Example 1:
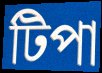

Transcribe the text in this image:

টিপা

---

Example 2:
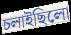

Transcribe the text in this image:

চলাইছিলো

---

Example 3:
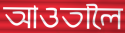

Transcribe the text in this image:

আওতালৈ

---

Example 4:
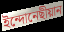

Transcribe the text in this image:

ইন্দোনেছীয়ান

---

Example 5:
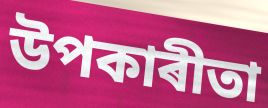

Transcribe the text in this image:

উপকাৰীতা